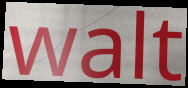
walt